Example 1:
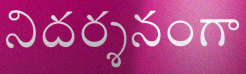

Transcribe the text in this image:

నిదర్శనంగా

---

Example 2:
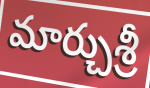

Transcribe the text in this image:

మార్చుశ్రీ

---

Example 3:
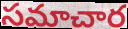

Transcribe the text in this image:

సమాచార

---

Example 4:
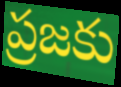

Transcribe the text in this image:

ప్రజకు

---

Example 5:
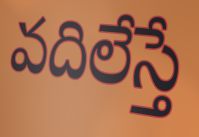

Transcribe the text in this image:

వదిలేస్తే